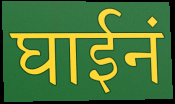
घाईनं